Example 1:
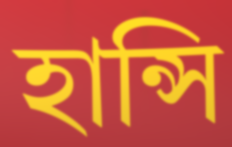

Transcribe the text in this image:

হান্সি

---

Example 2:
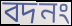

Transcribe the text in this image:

বদনং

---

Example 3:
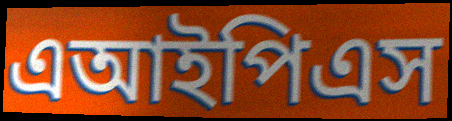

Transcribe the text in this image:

এআইপিএস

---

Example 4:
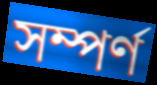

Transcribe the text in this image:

সম্পর্ণ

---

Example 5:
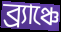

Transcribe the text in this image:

ব্র্যাঞ্চে